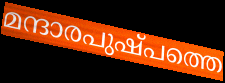
മന്ദാരപുഷ്പത്തെ